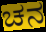
ಚನ